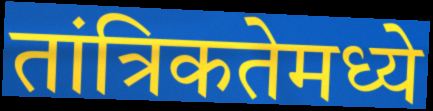
तांत्रिकतेमध्ये